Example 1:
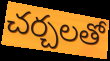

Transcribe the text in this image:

చర్చలతో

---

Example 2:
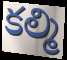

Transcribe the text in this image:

కల్మి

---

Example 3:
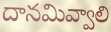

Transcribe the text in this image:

దానమివ్వాలి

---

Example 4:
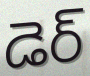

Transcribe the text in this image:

డెర్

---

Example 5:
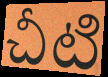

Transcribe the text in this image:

చీటి